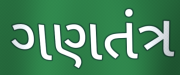
ગણતંત્ર